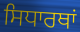
ਸਿਧਾਰਥਾਂ